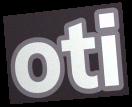
oti